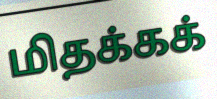
மிதக்கக்